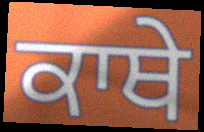
ਕਾਥੇ